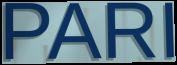
PARI